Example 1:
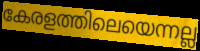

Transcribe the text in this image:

കേരളത്തിലെയെന്നല്ല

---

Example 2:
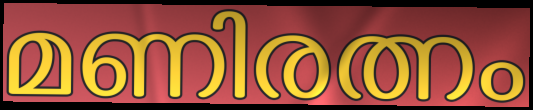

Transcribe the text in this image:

മണിരത്നം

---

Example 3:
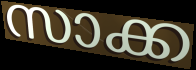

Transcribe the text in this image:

സാക്ക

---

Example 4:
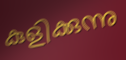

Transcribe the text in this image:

കുളിക്കുന്നു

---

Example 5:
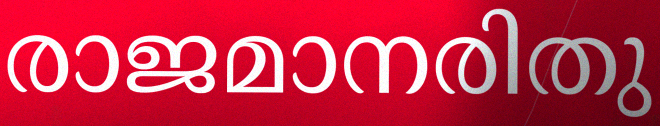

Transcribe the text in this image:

രാജമാനരിതു